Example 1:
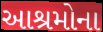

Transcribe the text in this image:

આશ્રમોના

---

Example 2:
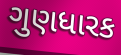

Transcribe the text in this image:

ગુણધારક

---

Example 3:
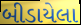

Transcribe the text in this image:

બીડાયેલા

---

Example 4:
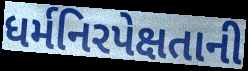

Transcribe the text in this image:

ધર્મનિરપેક્ષતાની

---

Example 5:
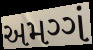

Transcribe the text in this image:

અમગ્ગં